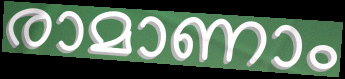
രാമാണാം